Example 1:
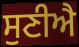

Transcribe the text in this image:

ਸੁਣੀਐ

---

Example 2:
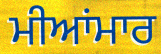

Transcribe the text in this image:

ਮੀਆਂਮਾਰ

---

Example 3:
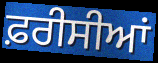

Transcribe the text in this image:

ਫ਼ਰੀਸੀਆਂ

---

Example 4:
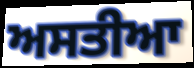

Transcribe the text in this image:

ਅਸਤੀਆ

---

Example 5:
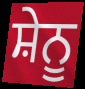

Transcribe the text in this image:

ਸ਼ੇਨੂ